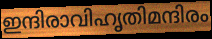
ഇന്ദിരാവിഹൃതിമന്ദിരം